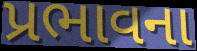
પ્રભાવના